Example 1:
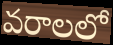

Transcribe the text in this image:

వరాలలో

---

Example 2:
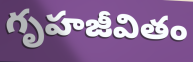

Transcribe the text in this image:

గృహజీవితం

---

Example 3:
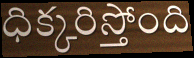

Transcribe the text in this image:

ధిక్కరిస్తోంది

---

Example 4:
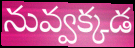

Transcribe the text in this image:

నువ్వక్కడ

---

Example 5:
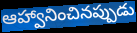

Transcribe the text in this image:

ఆహ్వానించినప్పుడు